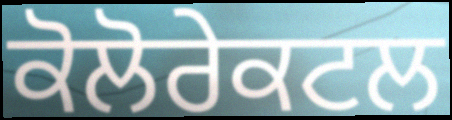
ਕੋਲੋਰੇਕਟਲ